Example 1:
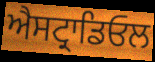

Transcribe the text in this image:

ਐਸਟ੍ਰਾਡਿਓਲ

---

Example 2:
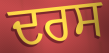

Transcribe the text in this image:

ਦਰਸ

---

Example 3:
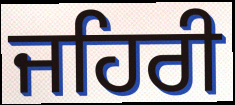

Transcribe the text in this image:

ਜਹਿਰੀ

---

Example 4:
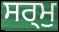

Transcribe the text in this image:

ਸਰ੍ਮੁ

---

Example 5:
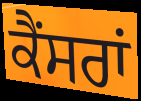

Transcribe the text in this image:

ਕੈਂਸਰਾਂ